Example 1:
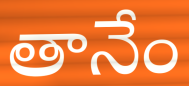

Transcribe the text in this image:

తానేం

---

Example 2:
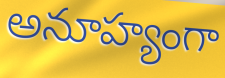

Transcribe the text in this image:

అనూహ్యంగా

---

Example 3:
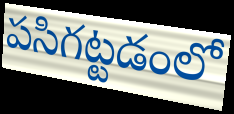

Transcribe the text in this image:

పసిగట్టడంలో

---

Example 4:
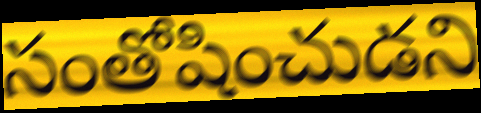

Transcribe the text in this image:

సంతోషించుడని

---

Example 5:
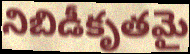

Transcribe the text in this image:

నిబిడీకృతమై